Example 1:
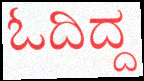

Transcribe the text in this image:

ಓದಿದ್ದ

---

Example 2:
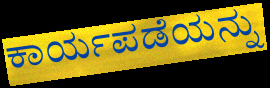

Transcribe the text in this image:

ಕಾರ್ಯಪಡೆಯನ್ನು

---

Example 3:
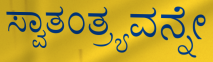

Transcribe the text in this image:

ಸ್ವಾತಂತ್ರ್ಯವನ್ನೇ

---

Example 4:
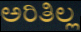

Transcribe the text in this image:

ಅರಿತಿಲ್ಲ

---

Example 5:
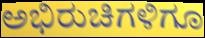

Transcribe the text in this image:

ಅಭಿರುಚಿಗಳಿಗೂ